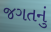
જગતનું